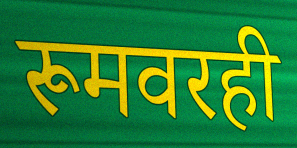
रूमवरही